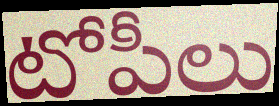
టోపీలు